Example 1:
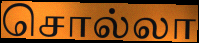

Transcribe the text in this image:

சொல்லா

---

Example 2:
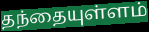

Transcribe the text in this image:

தந்தையுள்ளம்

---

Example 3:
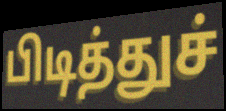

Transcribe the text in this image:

பிடித்துச்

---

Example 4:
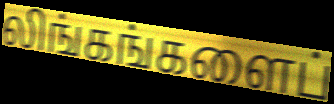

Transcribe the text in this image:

லிங்கங்களைப்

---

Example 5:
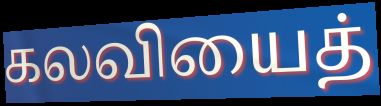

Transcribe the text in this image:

கலவியைத்